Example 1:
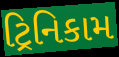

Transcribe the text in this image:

ટ્રિનિકામ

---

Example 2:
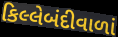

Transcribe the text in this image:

કિલ્લેબંદીવાળાં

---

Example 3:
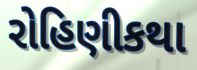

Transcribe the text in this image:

રોહિણીકથા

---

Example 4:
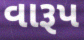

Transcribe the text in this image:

વારૂપ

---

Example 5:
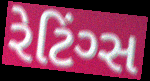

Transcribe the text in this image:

રેટિંગ્સ